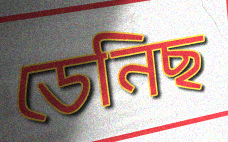
ডেনিছ